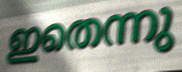
ഇതെന്നു